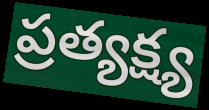
ప్రత్యక్ష్య